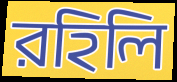
রহিলি